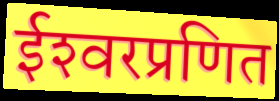
ईश्वरप्रणित